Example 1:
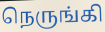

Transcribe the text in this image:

நெருங்கி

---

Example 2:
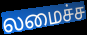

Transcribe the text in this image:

லமைச்ச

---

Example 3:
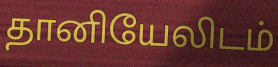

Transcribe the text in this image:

தானியேலிடம்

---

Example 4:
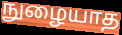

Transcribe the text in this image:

நுழையாத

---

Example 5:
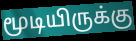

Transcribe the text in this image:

மூடியிருக்கு